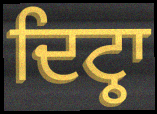
ਦਿਟ੍ਠਾ